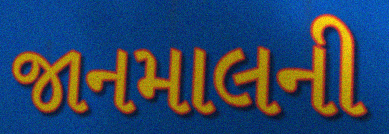
જાનમાલની